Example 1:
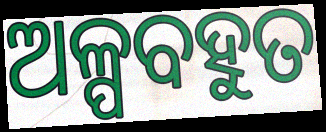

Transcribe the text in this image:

ଅଳ୍ପବହୁତ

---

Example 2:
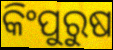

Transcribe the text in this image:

କିଂପୁରୁଷ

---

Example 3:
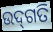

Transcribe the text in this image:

ଉଦ୍‌ଗତି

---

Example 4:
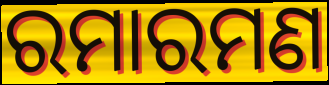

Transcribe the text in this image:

ରମାରମଣ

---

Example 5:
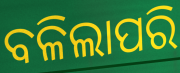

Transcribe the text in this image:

ବଳିଲାପରି